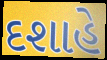
દશાહે